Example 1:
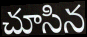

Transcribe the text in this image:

చూసిన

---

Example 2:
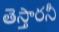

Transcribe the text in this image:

తెస్తారనీ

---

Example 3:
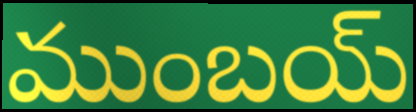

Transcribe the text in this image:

ముంబయ్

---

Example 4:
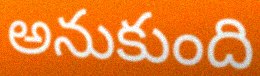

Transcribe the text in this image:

అనుకుంది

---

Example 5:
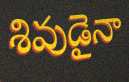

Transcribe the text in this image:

శివుడైనా